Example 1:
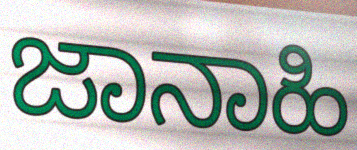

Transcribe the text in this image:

ಜಾನಾಹಿ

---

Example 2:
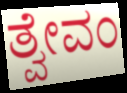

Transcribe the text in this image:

ತ್ವೇವಂ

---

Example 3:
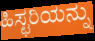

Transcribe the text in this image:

ಹಿಸ್ಟರಿಯನ್ನು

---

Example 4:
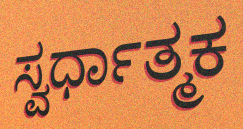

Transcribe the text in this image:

ಸ್ವರ್ಧಾತ್ಮಕ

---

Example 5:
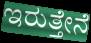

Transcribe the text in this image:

ಇರುತ್ತೇನೆ